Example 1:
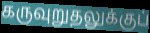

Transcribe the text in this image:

கருவுறுதலுக்குப்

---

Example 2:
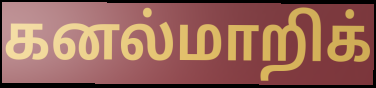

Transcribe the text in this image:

கனல்மாறிக்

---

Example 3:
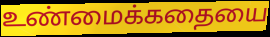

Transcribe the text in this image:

உண்மைக்கதையை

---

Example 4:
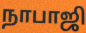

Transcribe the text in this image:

நாபாஜி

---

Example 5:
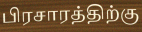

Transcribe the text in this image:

பிரசாரத்திற்கு